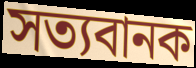
সত্যবানক